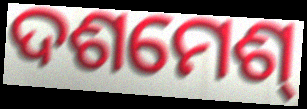
ଦଶମେଶ୍